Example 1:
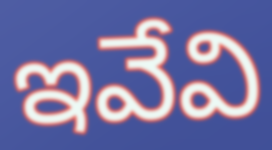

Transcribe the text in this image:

ఇవేవి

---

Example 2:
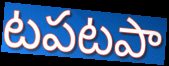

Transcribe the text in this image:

టపటపా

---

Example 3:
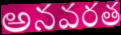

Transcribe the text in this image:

అనవరత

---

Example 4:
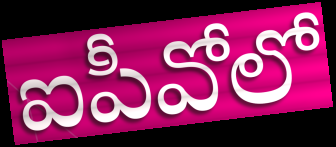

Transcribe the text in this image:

ఐపీవోలో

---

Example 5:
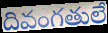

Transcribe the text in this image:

దివంగతులే